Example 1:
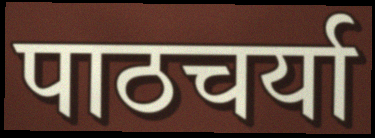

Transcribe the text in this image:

पाठचर्या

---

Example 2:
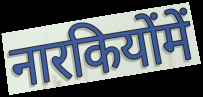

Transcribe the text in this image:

नारकियोंमें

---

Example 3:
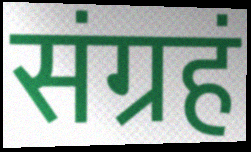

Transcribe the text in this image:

संग्रहं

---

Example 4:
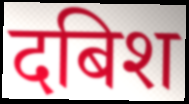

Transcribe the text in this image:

दबिश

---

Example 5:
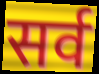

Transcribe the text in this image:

सर्व